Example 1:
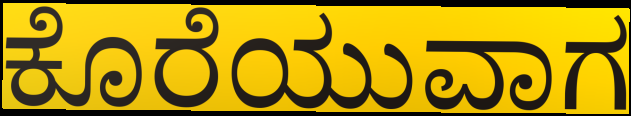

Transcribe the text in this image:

ಕೊರೆಯುವಾಗ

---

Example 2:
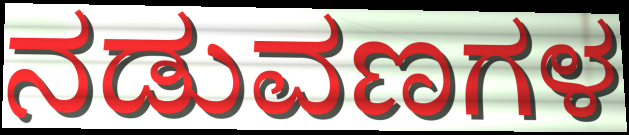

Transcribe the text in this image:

ನಡುವಣಗಳ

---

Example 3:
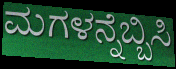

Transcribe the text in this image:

ಮಗಳನ್ನೆಬ್ಬಿಸಿ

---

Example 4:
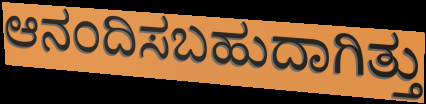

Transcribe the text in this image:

ಆನಂದಿಸಬಹುದಾಗಿತ್ತು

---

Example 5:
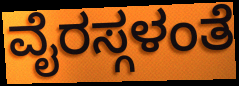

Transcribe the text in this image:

ವೈರಸ್ಗಳಂತೆ